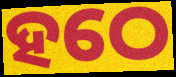
ହଠେ